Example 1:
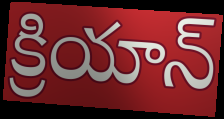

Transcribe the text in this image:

క్రియాన్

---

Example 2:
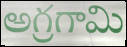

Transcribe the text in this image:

అగ్రగామి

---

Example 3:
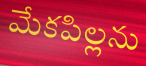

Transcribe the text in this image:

మేకపిల్లను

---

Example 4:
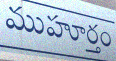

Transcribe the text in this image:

ముహూర్తం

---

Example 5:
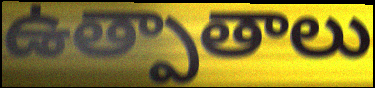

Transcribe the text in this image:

ఉత్పాతాలు